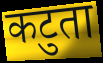
कटुता